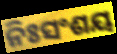
ନିଃସଂଶୟ